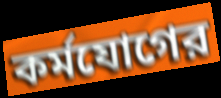
কর্মযোগের